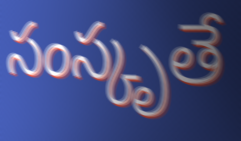
సంస్కృతే